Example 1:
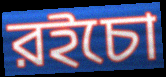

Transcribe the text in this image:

রইচো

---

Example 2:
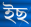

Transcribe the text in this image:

ইছ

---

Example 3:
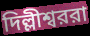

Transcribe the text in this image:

দিল্লীশ্বররা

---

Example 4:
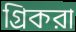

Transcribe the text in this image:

গ্রিকরা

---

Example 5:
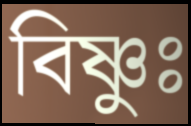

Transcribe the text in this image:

বিষ্ণুঃ